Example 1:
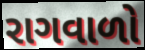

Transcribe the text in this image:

રાગવાળો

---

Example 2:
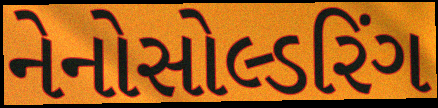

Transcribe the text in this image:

નેનોસોલ્ડરિંગ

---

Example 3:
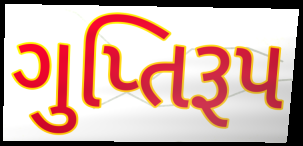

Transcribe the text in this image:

ગુપ્તિરૂપ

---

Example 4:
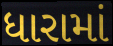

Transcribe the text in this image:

ધારામાં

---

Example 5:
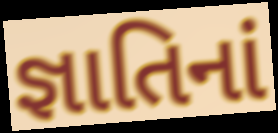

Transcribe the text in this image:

જ્ઞાતિનાં